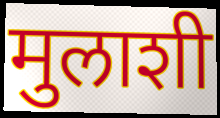
मुलाशी